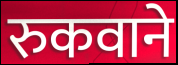
रुकवाने